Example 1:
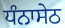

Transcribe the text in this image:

ਧੰਨਾਸੇਠ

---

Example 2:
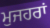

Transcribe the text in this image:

ਮੁਜਹਰਾਂ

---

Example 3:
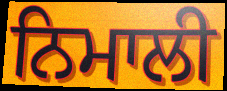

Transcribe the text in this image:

ਨਿਮਾਲੀ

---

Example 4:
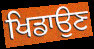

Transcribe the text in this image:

ਖਿਡਾਉਣ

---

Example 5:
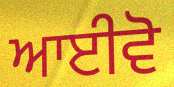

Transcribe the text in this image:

ਆਈਵੋ